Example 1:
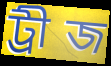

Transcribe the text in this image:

ট্রীজ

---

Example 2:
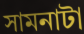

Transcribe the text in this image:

সামনাটা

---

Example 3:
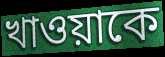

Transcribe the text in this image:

খাওয়াকে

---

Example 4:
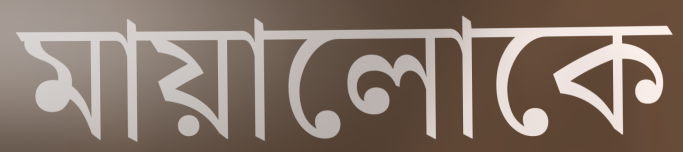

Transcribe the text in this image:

মায়ালোকে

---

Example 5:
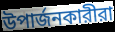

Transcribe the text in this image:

উপার্জনকারীরা